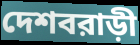
দেশবরাড়ী